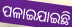
ପଳାଇଯାଇଛି